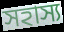
সহাস্য